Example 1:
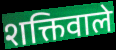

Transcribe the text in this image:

शक्तिवाले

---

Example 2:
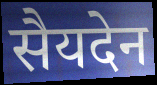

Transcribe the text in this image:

सैयदेन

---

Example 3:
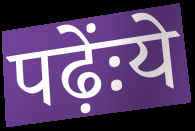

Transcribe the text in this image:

पढ़ेंःये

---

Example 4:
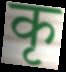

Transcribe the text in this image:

कृ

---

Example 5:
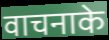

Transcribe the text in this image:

वाचनाके